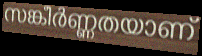
സങ്കീർണ്ണതയാണ്